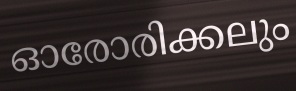
ഓരോരിക്കലും